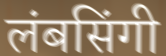
लंबसिंगी